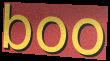
boo